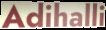
Adihalli